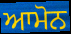
ਆਮੋਨ